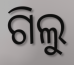
ଗିଲୁ